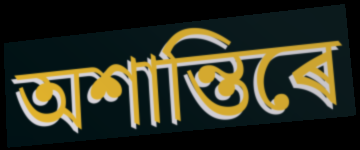
অশান্তিৰে